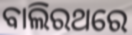
ବାଲିରଥରେ